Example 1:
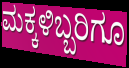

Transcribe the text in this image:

ಮಕ್ಕಳಿಬ್ಬರಿಗೂ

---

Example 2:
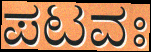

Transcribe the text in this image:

ಪಟವಃ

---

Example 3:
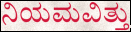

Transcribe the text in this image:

ನಿಯಮವಿತ್ತು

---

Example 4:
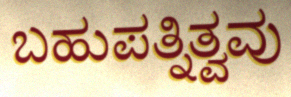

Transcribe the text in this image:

ಬಹುಪತ್ನಿತ್ವವು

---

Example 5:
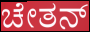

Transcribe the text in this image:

ಚೇತನ್